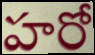
హరో